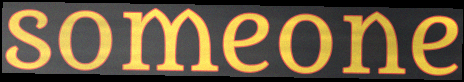
someone